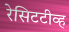
रेसिटटीव्ह